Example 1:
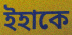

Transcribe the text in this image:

ইহাকে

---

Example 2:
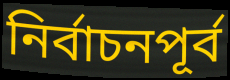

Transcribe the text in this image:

নির্বাচনপূর্ব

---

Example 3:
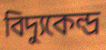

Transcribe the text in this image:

বিদ্যুকেন্দ্র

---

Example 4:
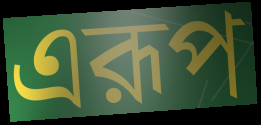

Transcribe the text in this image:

এরূপ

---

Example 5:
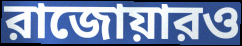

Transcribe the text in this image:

রাজোয়ারও